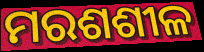
ମରଶଶୀଳ